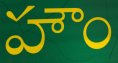
హౌం